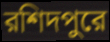
রশিদপুরে